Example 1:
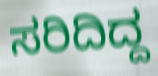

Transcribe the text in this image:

ಸರಿದಿದ್ದ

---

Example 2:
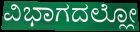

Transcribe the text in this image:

ವಿಭಾಗದಲ್ಲೋ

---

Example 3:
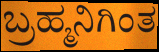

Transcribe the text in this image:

ಬ್ರಹ್ಮನಿಗಿಂತ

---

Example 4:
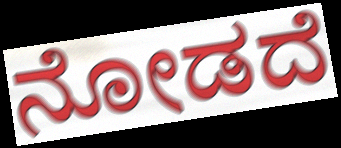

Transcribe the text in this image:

ನೋಡದೆ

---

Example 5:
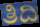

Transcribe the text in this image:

ತಿದಿ